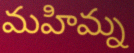
మహిమ్న